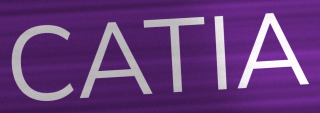
CATIA